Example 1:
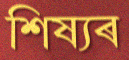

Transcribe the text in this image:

শিষ্যৰ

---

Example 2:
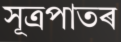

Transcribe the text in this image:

সূত্ৰপাতৰ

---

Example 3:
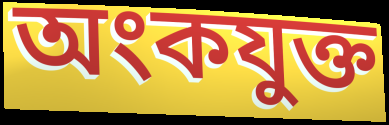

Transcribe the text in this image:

অংকযুক্ত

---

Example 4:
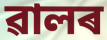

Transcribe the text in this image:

ৱালৰ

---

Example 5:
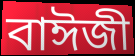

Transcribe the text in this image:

বাঈজী